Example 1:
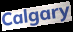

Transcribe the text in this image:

Calgary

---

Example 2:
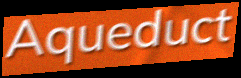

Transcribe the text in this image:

Aqueduct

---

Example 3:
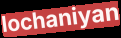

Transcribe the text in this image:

lochaniyan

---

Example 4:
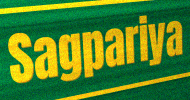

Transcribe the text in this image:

Sagpariya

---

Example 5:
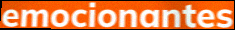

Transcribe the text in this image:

emocionantes